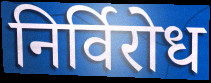
निर्विरोध